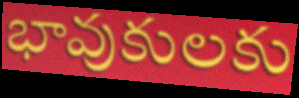
భావుకులకు